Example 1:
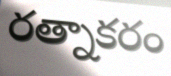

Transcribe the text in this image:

రత్నాకరం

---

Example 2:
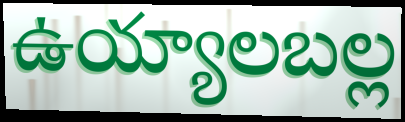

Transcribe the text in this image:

ఉయ్యాలబల్ల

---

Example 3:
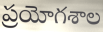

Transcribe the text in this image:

ప్రయోగశాల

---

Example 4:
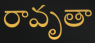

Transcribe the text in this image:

రావృతా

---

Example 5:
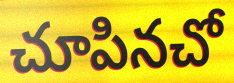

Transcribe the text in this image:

చూపినచో